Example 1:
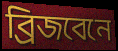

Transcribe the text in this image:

ব্রিজবেনে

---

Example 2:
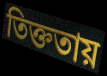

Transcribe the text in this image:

তিক্ততায়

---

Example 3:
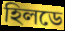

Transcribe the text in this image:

হিলডে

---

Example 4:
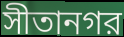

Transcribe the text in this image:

সীতানগর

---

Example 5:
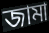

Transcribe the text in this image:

জামা